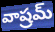
వాష్రమ్